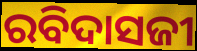
ରବିଦାସଜୀ